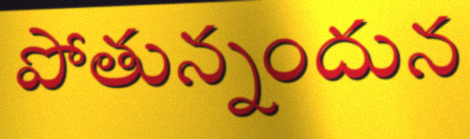
పోతున్నందున